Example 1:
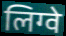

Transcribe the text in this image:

लिग्वे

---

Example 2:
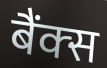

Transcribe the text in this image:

बैंक्‍स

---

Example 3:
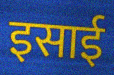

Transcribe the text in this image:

इसाई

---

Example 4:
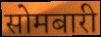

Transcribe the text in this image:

सोमबारी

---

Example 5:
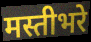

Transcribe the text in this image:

मस्तीभरे